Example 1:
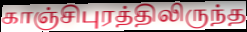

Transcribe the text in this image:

காஞ்சிபுரத்திலிருந்த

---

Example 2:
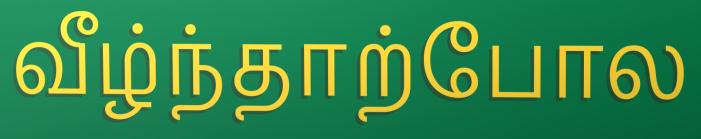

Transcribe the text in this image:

வீழ்ந்தாற்போல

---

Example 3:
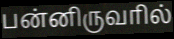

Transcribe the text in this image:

பன்னிருவரில்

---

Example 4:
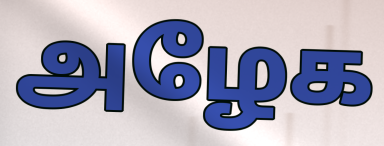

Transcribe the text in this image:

அழேக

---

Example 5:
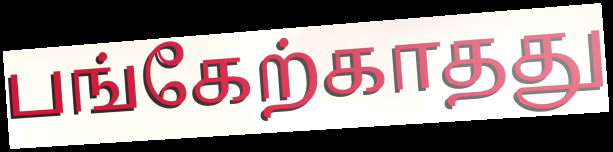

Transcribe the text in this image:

பங்கேற்காதது